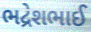
ભદ્રેશભાઈ